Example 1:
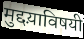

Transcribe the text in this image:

मुद्दय़ाविषयी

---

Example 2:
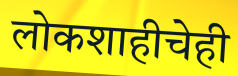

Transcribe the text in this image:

लोकशाहीचेही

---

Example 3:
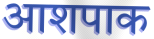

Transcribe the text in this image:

आशपाक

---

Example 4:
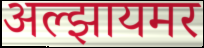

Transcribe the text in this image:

अल्झायमर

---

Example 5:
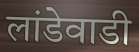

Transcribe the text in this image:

लांडेवाडी